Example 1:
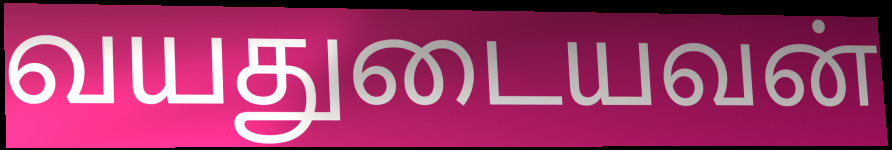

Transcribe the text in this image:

வயதுடையவன்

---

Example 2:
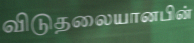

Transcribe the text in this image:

விடுதலையானபின்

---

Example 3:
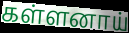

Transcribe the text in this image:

கள்ளனாய்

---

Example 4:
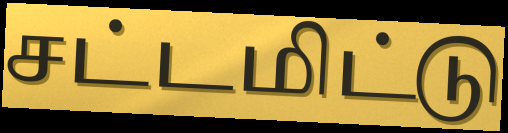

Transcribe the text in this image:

சட்டமிட்டு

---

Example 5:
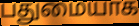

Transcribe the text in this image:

பதுமையாக